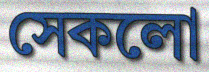
সেকলো